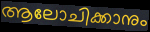
ആലോചിക്കാനും